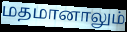
மதமானாலும்